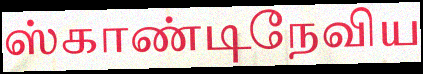
ஸ்காண்டிநேவிய